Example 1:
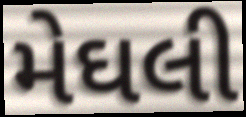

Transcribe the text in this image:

મેઘલી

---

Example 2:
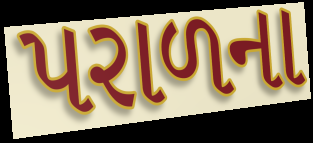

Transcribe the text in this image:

પરાળના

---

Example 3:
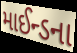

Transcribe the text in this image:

માઈન્ડના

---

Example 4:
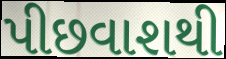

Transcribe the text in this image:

પીછવાશથી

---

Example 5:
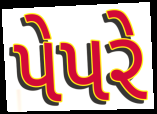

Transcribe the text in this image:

પેપરે